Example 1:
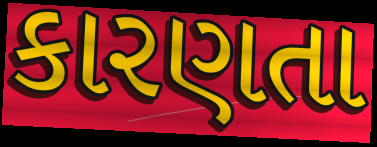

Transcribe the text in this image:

કારણતા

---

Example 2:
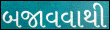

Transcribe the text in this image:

બજાવવાથી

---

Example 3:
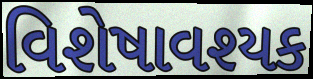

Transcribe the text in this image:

વિશેષાવશ્યક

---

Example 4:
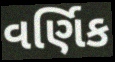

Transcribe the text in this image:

વર્ણિક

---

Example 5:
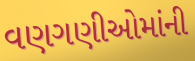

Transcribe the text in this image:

વણગણીઓમાંની